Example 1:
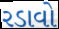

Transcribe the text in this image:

રડાવો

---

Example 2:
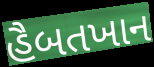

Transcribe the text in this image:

હૈબતખાન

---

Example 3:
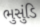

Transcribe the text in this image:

ભુસુંડિ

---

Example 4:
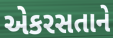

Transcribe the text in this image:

એકરસતાને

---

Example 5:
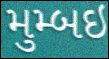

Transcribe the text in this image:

મુમ્બઇ